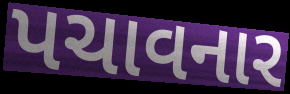
પચાવનાર